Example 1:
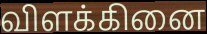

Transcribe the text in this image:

விளக்கினை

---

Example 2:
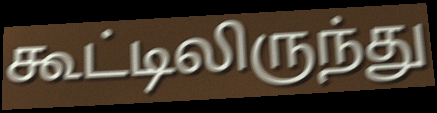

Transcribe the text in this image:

கூட்டிலிருந்து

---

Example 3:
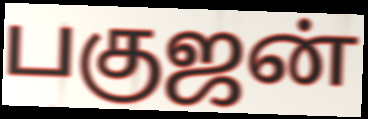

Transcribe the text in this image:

பகுஜன்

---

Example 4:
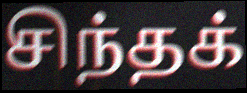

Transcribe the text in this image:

சிந்தக்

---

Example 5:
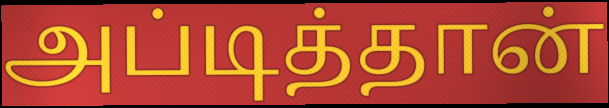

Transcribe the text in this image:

அப்டித்தான்